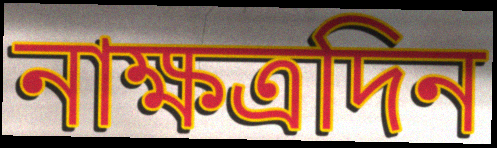
নাক্ষত্রদিন